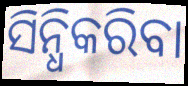
ସିନ୍ଧିକରିବା